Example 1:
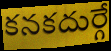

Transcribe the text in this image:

కనకదుర్గే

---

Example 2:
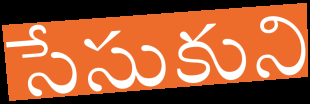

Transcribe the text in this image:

సేసుకుని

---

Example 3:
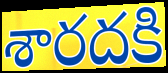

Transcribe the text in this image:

శారదకి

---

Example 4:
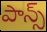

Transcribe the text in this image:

పాన్స్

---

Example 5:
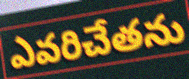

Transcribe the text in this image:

ఎవరిచేతను